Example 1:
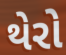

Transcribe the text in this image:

થેરો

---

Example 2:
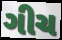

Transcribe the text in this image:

ગીચ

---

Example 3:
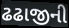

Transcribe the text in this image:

ઢઢાજીની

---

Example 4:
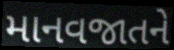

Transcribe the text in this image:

માનવજાતને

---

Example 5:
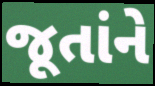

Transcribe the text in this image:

જૂતાંને